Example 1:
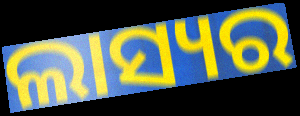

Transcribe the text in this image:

ଲାସ୍ୟର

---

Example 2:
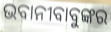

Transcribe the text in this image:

ଭବାନୀବାବୁଙ୍କର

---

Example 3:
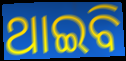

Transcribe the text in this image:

ଥାଇବି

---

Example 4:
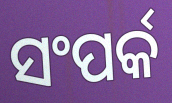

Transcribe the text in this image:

ସଂପର୍କ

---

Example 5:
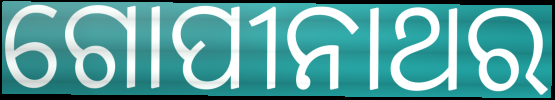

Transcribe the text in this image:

ଗୋପୀନାଥର